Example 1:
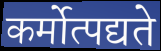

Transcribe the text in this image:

कर्मोत्पद्यते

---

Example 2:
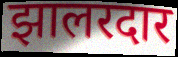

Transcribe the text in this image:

झालरदार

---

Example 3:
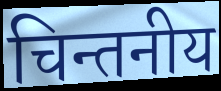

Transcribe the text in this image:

चिन्तनीय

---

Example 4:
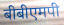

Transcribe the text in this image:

बीबीएमपी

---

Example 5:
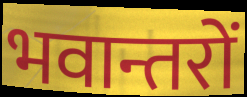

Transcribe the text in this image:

भवान्तरों